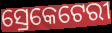
ସ୍ରେକେଟେରୀ